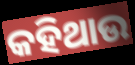
କହିଥାଉ